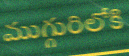
ముగ్గురిలోకి